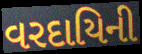
વરદાયિની